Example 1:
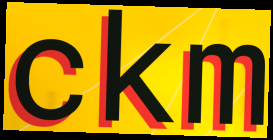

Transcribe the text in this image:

ckm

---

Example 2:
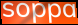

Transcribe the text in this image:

soppa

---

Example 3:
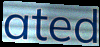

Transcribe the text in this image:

ated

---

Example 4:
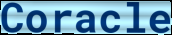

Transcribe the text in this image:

Coracle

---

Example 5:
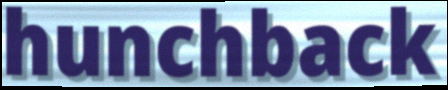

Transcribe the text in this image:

hunchback